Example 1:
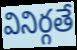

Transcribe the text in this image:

వినిర్గతే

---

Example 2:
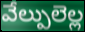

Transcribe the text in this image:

వేల్పులెల్ల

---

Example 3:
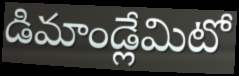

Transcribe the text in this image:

డిమాండ్లేమిటో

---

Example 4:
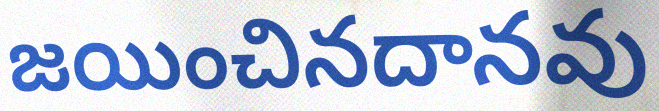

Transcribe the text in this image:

జయించినదానవు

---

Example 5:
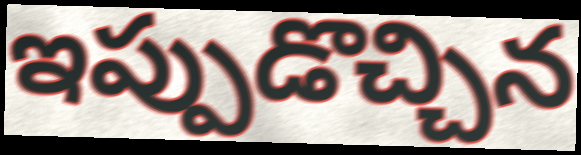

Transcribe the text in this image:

ఇప్పుడొచ్చిన